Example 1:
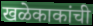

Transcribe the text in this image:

खळेकाकांची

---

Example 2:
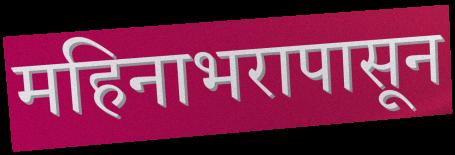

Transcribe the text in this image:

महिनाभरापासून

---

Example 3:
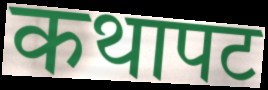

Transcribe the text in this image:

कथापट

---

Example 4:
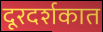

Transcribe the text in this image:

दूरदर्शकात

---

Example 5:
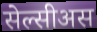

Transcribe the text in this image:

सेल्सीअस